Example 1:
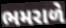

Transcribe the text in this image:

ભમરાળે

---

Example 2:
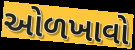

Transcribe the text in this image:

ઓળખાવો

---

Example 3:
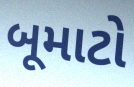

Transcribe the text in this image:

બૂમાટો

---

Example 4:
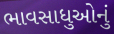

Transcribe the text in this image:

ભાવસાધુઓનું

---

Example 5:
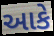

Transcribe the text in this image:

આકે